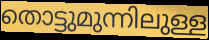
തൊട്ടുമുന്നിലുള്ള